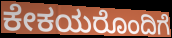
ಕೇಕಯರೊಂದಿಗೆ